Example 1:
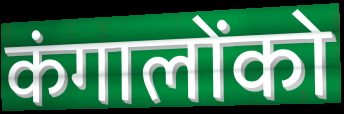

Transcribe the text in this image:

कंगालोंको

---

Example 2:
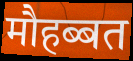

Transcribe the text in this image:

मौहब्बत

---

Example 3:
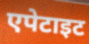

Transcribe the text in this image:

एपेटाइट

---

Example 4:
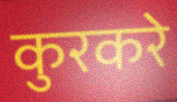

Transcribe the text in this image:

कुरकरे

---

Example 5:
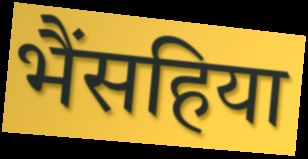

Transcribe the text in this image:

भैंसहिया